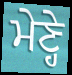
ਮੇਣ੍ਹੇ